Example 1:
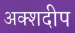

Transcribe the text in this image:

अक्शदीप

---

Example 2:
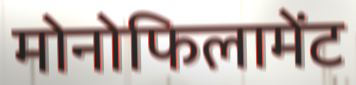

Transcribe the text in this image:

मोनोफिलामेंट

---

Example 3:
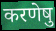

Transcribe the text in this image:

करणेषु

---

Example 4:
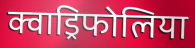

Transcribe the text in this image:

क्वाड्रिफोलिया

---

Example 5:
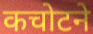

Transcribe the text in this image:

कचोटने